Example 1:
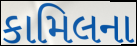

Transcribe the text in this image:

કામિલના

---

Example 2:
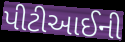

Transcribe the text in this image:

પીટીઆઈની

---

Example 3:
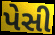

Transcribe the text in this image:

પેસી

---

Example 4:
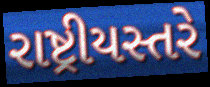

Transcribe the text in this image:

રાષ્ટ્રીયસ્તરે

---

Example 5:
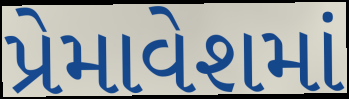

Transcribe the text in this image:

પ્રેમાવેશમાં